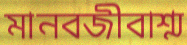
মানবজীবাশ্ম